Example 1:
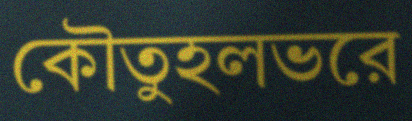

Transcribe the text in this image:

কৌতুহলভরে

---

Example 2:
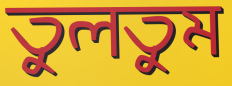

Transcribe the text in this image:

তুলতুম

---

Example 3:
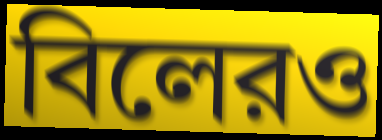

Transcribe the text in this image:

বিলেরও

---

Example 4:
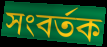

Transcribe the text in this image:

সংবর্তক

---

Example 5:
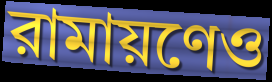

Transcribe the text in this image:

রামায়ণেও